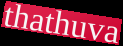
thathuva